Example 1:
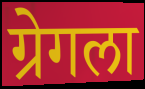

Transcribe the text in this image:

ग्रेगला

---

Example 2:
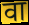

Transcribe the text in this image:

वा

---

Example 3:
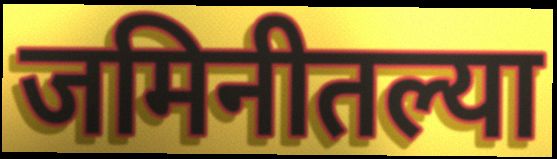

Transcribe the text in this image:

जमिनीतल्या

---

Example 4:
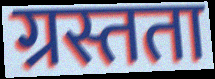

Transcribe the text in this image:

ग्रस्तता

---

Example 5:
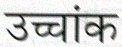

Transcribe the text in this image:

उच्चांक